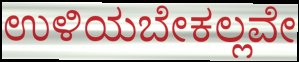
ಉಳಿಯಬೇಕಲ್ಲವೇ